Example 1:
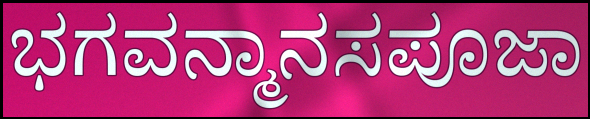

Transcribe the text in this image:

ಭಗವನ್ಮಾನಸಪೂಜಾ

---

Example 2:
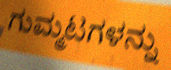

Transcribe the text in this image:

ಗುಮ್ಮಟಗಳನ್ನು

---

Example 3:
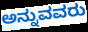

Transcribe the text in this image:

ಅನ್ನುವವರು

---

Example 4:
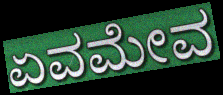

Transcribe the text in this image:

ಏವಮೇವ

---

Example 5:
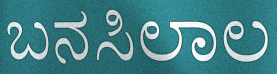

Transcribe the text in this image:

ಬನಸಿಲಾಲ